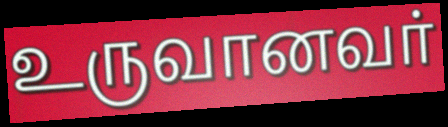
உருவானவர்